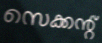
സെക്കന്റ്